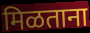
मिळताना